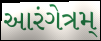
આરંગેત્રમ્